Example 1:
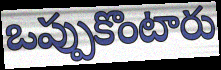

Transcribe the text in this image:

ఒప్పుకొంటారు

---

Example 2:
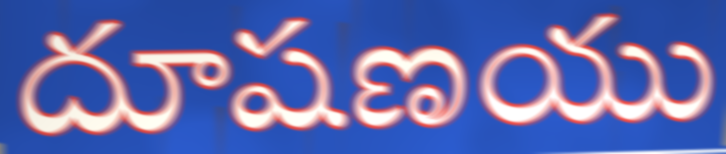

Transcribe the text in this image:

దూషణయు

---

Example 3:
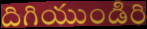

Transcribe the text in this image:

దిగియుండిరి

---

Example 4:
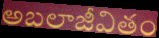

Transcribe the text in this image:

అబలాజీవితం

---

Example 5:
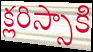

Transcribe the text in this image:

క్లరిస్సాకి